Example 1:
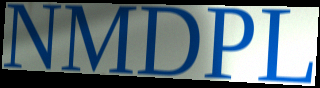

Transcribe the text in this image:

NMDPL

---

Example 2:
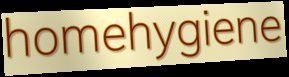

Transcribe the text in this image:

homehygiene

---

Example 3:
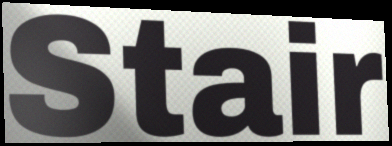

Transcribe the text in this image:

Stair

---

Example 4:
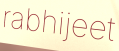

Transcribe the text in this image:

rabhijeet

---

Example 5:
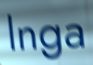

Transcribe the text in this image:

lnga